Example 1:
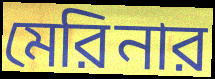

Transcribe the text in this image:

মেরিনার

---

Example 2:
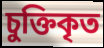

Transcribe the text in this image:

চুক্তিকৃত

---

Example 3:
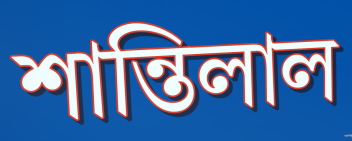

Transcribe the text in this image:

শান্তিলাল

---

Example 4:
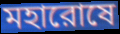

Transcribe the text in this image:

মহারোষে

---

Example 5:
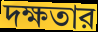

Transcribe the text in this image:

দক্ষতার